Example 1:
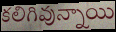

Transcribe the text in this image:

కలిగివున్నాయి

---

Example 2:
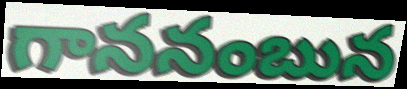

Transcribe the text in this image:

గాననంబున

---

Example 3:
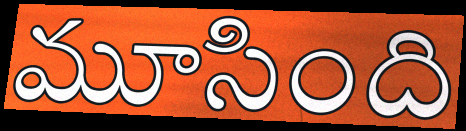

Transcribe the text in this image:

మూసింది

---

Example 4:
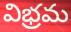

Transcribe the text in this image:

విభ్రమ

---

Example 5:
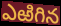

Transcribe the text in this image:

ఎఱిగిన